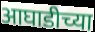
आघाडीच्‍या